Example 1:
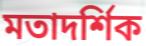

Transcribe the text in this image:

মতাদর্শিক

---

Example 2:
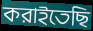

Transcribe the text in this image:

করাইতেছি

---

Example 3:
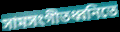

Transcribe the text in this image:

সামসংগীতধ্বনিতে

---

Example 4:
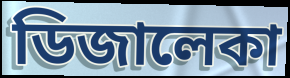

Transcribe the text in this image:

ডিজালেকা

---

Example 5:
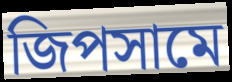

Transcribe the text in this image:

জিপসামে